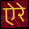
ऐरे